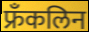
फ्रॅंकलिन